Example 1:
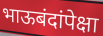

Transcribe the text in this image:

भाऊबंदांपेक्षा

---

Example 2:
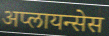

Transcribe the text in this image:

अप्लायन्सेस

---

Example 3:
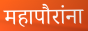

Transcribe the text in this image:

महापौरांना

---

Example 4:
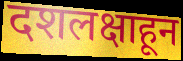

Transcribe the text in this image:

दशलक्षाहून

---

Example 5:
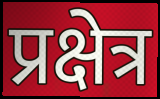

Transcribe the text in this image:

प्रक्षेत्र